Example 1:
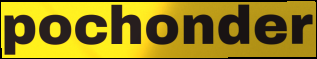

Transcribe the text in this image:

pochonder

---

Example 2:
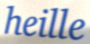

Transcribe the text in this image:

heille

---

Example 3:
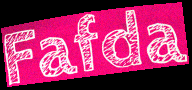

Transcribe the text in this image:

Fafda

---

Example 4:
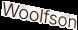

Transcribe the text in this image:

Woolfson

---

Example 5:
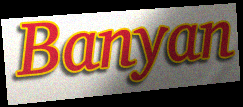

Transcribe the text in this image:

Banyan